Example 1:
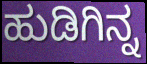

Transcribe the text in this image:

ಹುಡಿಗಿನ್ನ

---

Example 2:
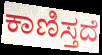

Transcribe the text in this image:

ಕಾಣಿಸ್ತದೆ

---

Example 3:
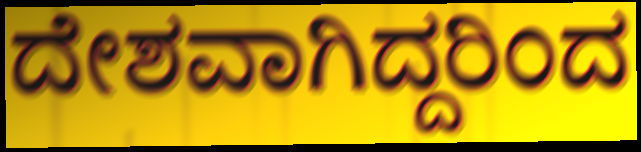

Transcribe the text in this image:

ದೇಶವಾಗಿದ್ದರಿಂದ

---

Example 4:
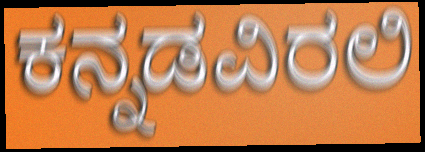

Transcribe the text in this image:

ಕನ್ನಡವಿರಲಿ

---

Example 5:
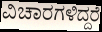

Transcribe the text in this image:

ವಿಚಾರಗಳಿದ್ದರೆ